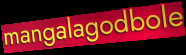
mangalagodbole